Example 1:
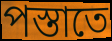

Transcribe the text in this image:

পস্তাতে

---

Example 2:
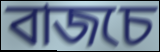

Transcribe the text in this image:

বাজচে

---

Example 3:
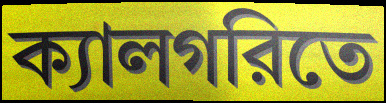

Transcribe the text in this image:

ক্যালগরিতে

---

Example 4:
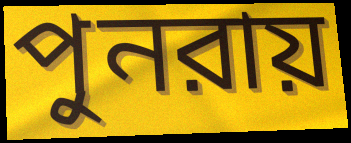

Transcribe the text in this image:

পুনরায়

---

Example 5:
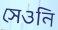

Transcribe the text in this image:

সেওনি